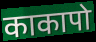
काकापो